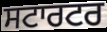
ਸਟਾਰਟਰ